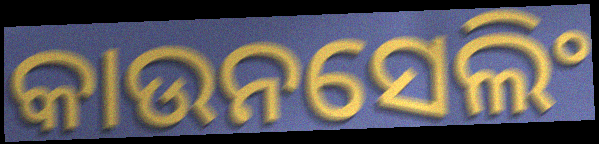
କାଉନସେଲିଂ